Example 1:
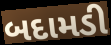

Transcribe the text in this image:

બદામડી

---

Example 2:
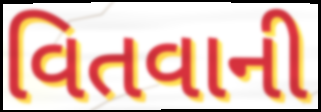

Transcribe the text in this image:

વિતવાની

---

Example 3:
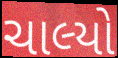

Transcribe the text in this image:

ચાલ્યો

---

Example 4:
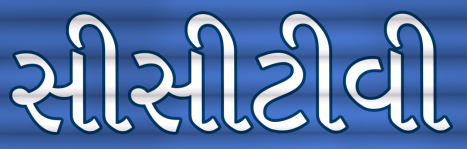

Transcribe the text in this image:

સીસીટીવી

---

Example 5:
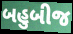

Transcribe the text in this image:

બહુબીજ